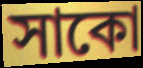
সাকো